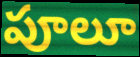
పూలూ